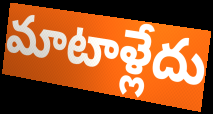
మాటాళ్లేదు